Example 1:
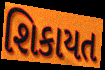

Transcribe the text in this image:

શિકાયત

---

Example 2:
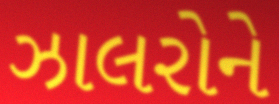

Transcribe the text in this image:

ઝાલરોને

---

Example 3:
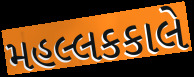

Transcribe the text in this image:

મહલ્લકકાલે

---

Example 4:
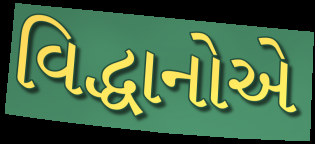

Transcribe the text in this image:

વિદ્ધાનોએ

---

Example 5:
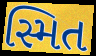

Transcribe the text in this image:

સ્મિત